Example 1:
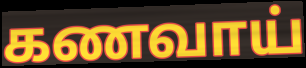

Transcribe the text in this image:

கணவாய்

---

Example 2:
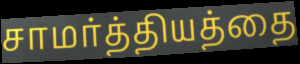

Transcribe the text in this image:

சாமர்த்தியத்தை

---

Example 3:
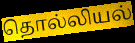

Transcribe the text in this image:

தொல்லியல்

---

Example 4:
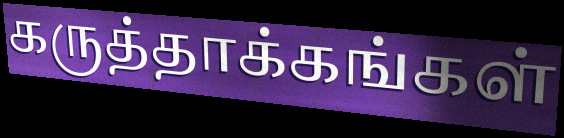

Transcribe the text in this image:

கருத்தாக்கங்கள்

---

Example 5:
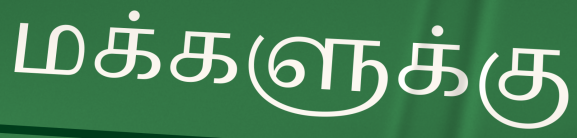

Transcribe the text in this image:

மக்களுக்கு